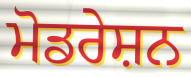
ਮੋਡਰੇਸ਼ਨ